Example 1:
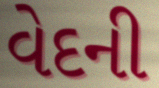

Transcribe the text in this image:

વેદની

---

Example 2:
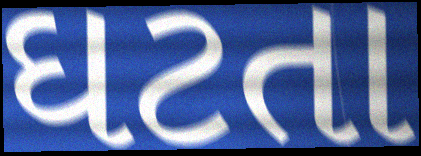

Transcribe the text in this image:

ઘટતા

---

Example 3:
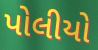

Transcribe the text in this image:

પોલીયો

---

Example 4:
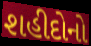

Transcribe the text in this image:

શહીદોનો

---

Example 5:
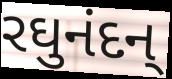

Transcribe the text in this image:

રઘુનંદન્